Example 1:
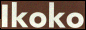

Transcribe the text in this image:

Ikoko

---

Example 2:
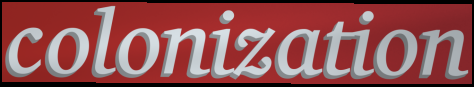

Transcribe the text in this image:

colonization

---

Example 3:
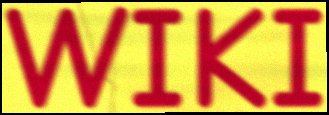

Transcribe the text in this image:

WIKI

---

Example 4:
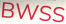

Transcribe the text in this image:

BWSS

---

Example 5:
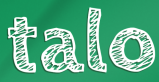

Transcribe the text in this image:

talo